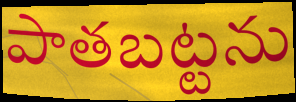
పాతబట్టను